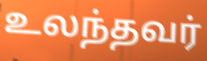
உலந்தவர்